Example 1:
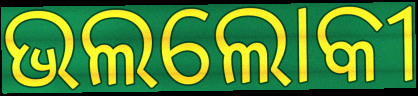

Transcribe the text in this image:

ଭଲଲୋକୀ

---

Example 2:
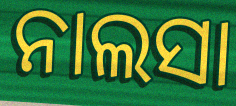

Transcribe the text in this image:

ନାଲସା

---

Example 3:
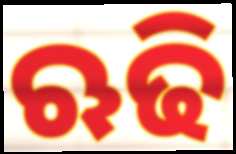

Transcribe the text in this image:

ଋଢି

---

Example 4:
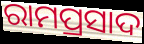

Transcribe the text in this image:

ରାମପ୍ରସାଦ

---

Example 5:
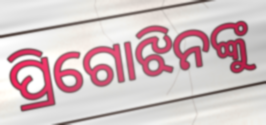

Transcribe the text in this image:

ପ୍ରିଗୋଝିନଙ୍କୁ